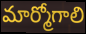
మార్మోగాలి